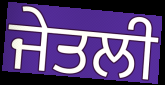
ਜੇਤਲੀ